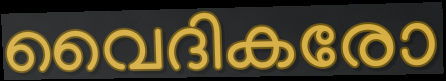
വൈദികരോ